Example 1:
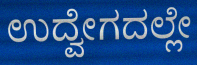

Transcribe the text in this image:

ಉದ್ವೇಗದಲ್ಲೇ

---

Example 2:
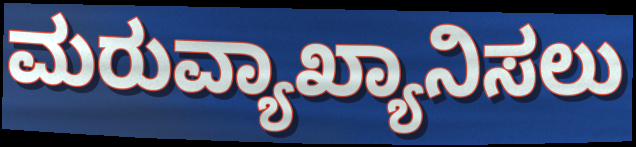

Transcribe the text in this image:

ಮರುವ್ಯಾಖ್ಯಾನಿಸಲು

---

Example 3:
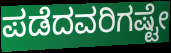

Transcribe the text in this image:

ಪಡೆದವರಿಗಷ್ಟೇ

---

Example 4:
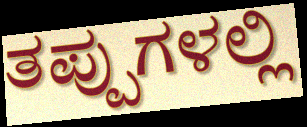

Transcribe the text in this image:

ತಪ್ಪುಗಳಲ್ಲಿ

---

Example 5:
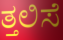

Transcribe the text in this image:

ತ್ತಲಿಸೆ